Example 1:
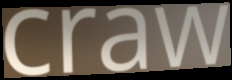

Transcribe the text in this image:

craw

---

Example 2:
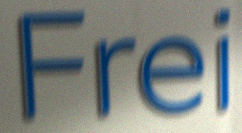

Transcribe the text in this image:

Frei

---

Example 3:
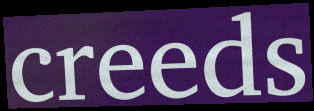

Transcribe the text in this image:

creeds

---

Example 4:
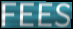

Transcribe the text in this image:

FEES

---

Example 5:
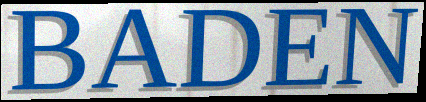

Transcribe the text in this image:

BADEN